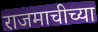
राजमाचीच्या